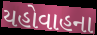
યહોવાહના